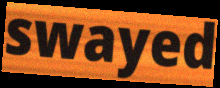
swayed